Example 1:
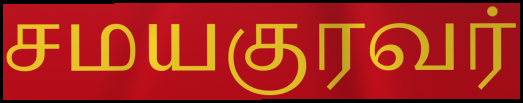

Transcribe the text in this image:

சமயகுரவர்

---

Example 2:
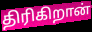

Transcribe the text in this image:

திரிகிறான்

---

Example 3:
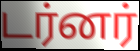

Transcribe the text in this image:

டர்னர்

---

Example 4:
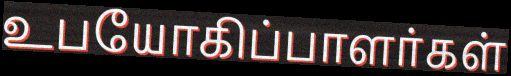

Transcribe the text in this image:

உபயோகிப்பாளர்கள்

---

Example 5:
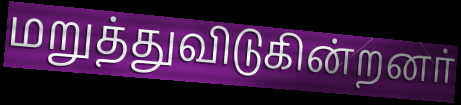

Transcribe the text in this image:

மறுத்துவிடுகின்றனர்